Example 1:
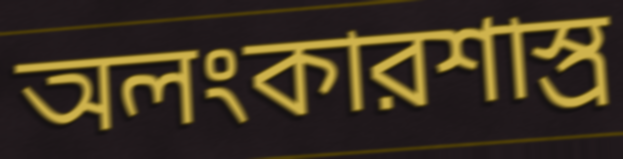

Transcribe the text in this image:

অলংকারশাস্ত্র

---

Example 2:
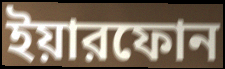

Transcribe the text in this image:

ইয়ারফোন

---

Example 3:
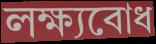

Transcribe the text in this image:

লক্ষ্যবোধ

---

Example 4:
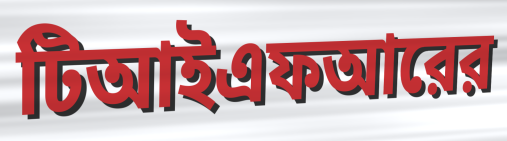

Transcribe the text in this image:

টিআইএফআরের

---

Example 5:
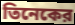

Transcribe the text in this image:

তিনেকের